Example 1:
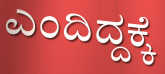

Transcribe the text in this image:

ಎಂದಿದ್ದಕ್ಕೆ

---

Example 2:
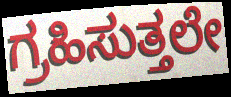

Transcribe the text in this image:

ಗ್ರಹಿಸುತ್ತಲೇ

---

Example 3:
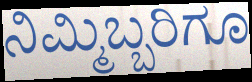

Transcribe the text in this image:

ನಿಮ್ಮಿಬ್ಬರಿಗೂ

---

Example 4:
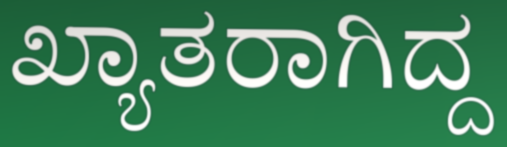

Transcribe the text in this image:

ಖ್ಯಾತರಾಗಿದ್ದ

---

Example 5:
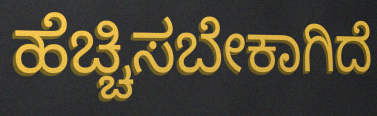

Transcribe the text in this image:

ಹೆಚ್ಚಿಸಬೇಕಾಗಿದೆ